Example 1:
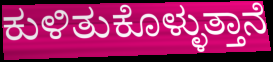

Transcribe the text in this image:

ಕುಳಿತುಕೊಳ್ಳುತ್ತಾನೆ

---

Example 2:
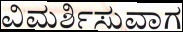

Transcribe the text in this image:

ವಿಮರ್ಶಿಸುವಾಗ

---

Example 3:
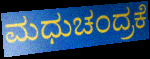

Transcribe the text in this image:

ಮಧುಚಂದ್ರಕೆ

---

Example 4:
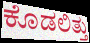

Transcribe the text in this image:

ಕೊಡಲಿತ್ತು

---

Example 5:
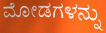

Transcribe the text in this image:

ಮೋಡಗಳನ್ನು